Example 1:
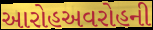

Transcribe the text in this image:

આરોહઅવરોહની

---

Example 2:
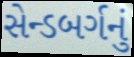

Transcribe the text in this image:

સેન્ડબર્ગનું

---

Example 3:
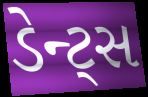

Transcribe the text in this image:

ડેન્ટ્સ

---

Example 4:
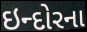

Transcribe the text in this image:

ઇન્દોરના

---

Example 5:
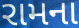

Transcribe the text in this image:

રામના